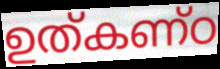
ഉത്കണ്ഠ